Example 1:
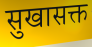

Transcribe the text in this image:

सुखासक्त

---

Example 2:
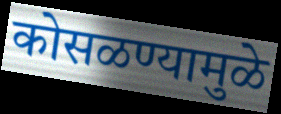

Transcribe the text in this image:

कोसळण्यामुळे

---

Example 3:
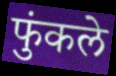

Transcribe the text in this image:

फुंकले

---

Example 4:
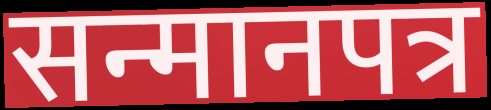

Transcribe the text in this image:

सन्मानपत्र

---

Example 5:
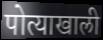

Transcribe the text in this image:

पोत्याखाली